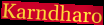
Karndharo